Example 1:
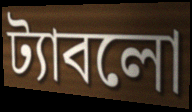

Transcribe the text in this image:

ট্যাবলো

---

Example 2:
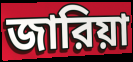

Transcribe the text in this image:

জারিয়া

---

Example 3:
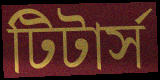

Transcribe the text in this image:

টিটার্স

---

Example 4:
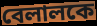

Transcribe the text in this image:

বেলালকে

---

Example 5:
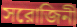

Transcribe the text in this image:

সরোজিনী